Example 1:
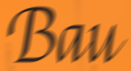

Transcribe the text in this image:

Bau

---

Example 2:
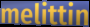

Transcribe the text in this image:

melittin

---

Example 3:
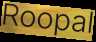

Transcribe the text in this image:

Roopal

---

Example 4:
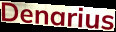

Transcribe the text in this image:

Denarius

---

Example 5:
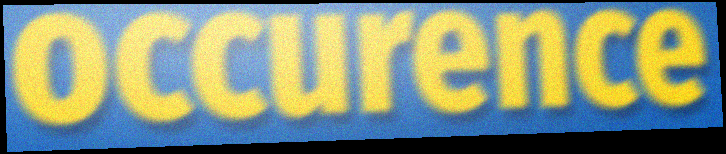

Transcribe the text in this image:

occurence